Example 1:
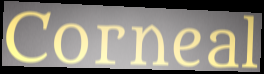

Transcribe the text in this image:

Corneal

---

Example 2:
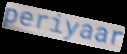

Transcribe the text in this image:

periyaar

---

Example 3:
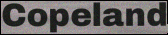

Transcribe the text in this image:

Copeland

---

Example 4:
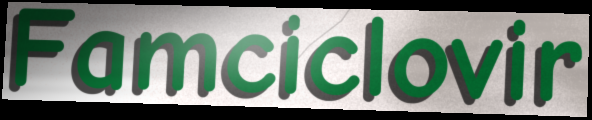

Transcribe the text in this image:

Famciclovir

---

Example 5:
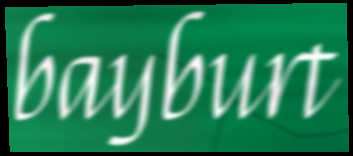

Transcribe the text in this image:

bayburt